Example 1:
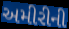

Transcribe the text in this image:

અમીરીની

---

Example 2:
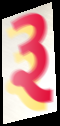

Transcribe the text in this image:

રૂ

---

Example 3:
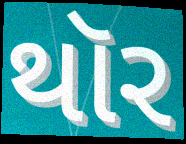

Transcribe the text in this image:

થૉર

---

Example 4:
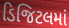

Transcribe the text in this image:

ડિજિટલમાં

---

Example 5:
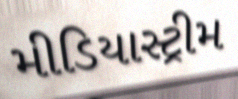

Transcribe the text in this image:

મીડિયાસ્ટ્રીમ